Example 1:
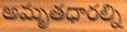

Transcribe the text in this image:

అమృతధారల్ని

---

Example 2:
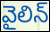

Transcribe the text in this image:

వైలిన్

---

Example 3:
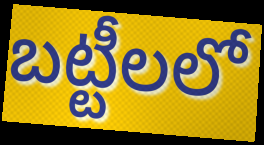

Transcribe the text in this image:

బట్టీలలో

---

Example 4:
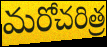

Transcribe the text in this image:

మరోచరిత్ర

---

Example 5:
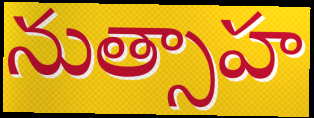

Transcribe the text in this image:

నుత్సాహ